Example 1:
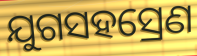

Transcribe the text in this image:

ଯୁଗସହସ୍ରେଣ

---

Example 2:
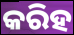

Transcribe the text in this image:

କରିହ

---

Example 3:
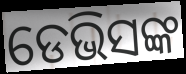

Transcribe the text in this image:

ଡେଭିସଙ୍କ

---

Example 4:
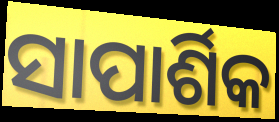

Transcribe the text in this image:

ସାପାର୍ଶିକ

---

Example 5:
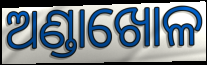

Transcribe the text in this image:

ଅଣ୍ଡାଖୋଳ